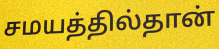
சமயத்தில்தான்